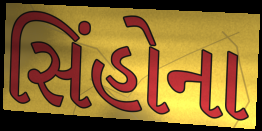
સિંહોના